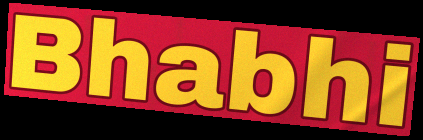
Bhabhi